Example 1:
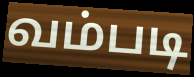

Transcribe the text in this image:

வம்படி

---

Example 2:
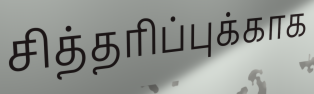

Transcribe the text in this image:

சித்தரிப்புக்காக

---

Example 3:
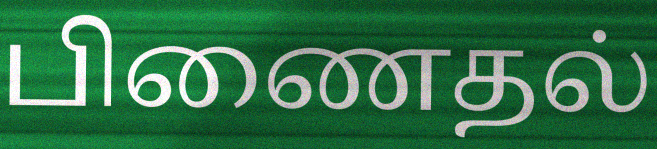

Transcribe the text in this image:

பிணைதல்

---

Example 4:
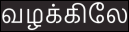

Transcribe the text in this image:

வழக்கிலே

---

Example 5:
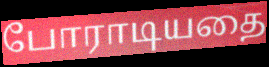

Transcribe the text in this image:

போராடியதை